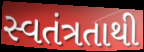
સ્વતંત્રતાથી